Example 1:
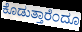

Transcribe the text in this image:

ಕೊಡುತ್ತಾರೆಂದೂ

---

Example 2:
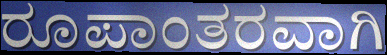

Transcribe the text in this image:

ರೂಪಾಂತರವಾಗಿ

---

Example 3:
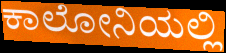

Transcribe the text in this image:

ಕಾಲೋನಿಯಲ್ಲಿ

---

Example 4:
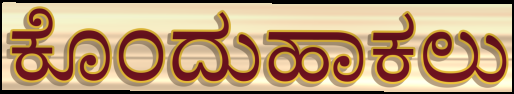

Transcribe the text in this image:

ಕೊಂದುಹಾಕಲು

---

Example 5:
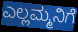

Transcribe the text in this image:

ಎಲ್ಲಮ್ಮನಿಗೆ